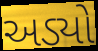
અડ્યો